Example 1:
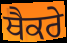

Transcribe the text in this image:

ਥੈਕਰੇ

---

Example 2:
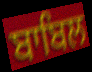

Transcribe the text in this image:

ਬਾਬਿਲ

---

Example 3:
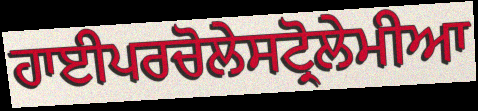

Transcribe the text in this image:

ਹਾਈਪਰਚੋਲੇਸਟ੍ਰੋਲੇਮੀਆ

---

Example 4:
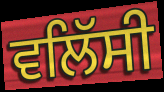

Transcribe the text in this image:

ਵਲਿੱਸੀ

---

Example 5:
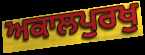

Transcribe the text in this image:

ਅਕਾਲਪੁਰਖੁ